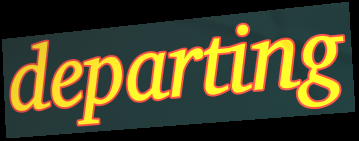
departing